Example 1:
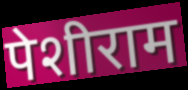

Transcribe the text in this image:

पेशीराम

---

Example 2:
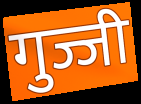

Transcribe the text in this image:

गुज्जी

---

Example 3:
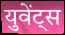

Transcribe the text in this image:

युवेंट्स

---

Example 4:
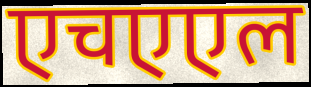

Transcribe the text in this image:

एचएएल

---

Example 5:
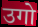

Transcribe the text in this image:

उगो